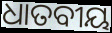
ଧାତବୀୟ